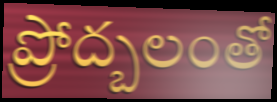
ప్రోద్బలంతో